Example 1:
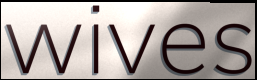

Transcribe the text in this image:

wives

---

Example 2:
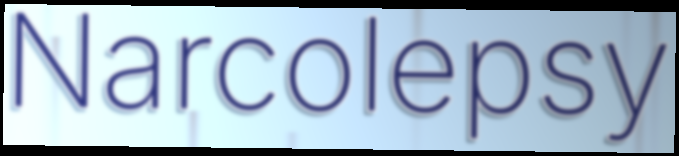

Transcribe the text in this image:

Narcolepsy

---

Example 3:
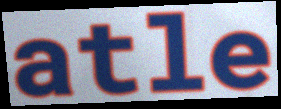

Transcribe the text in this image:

atle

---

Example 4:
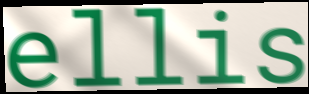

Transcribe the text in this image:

ellis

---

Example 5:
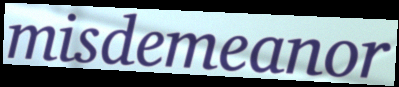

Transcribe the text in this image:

misdemeanor